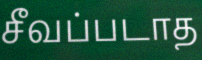
சீவப்படாத